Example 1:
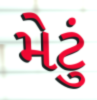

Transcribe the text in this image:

મેટું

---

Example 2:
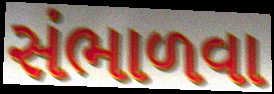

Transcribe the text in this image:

સંભાળવા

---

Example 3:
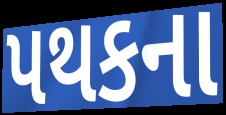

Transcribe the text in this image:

પથકના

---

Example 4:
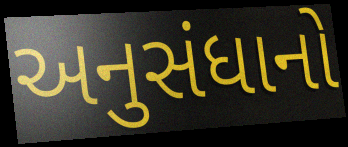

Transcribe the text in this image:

અનુસંધાનો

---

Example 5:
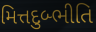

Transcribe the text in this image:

મિત્તદુબ્ભીતિ